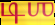
டிஶ